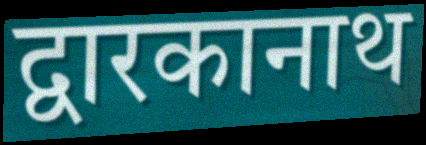
द्वारकानाथ